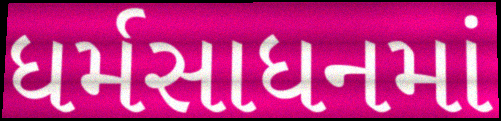
ધર્મસાધનમાં